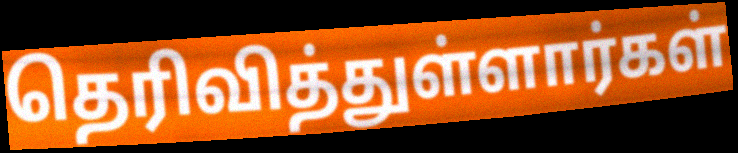
தெரிவித்துள்ளார்கள்